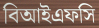
বিআইএফসি